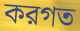
করগত